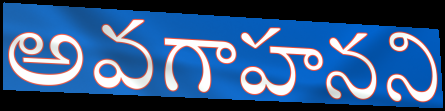
అవగాహనని